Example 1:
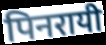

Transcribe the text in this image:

पिनरायी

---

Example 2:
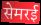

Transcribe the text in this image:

सेमरई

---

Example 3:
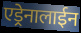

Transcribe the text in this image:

एड्रेनालाईन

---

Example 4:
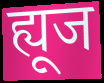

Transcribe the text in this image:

ह्यूज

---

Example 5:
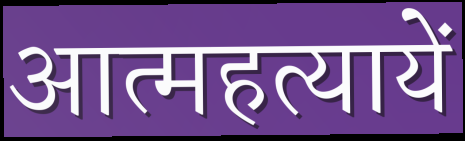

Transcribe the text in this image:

आत्महत्यायें